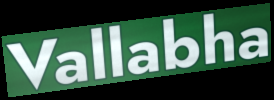
Vallabha